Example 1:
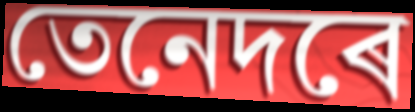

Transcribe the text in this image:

তেনেদৰে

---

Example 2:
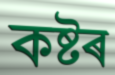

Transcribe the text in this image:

কষ্টৰ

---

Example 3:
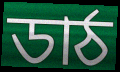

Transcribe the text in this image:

ডাঠ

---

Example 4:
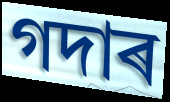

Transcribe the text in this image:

গদাৰ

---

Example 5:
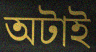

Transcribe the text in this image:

অটাই